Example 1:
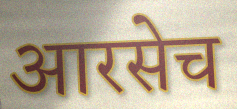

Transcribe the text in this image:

आरसेच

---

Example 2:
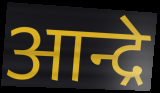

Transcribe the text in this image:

आन्द्रे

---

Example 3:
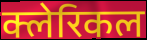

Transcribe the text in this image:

क्लेरिकल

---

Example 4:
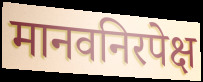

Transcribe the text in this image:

मानवनिरपेक्ष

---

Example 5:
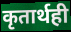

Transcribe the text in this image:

कृतार्थही